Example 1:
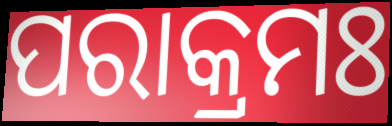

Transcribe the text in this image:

ପରାକ୍ରମଃ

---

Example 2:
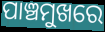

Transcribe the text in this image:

ପାଞ୍ଚମୁଖରେ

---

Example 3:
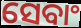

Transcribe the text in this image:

ସେବାଂ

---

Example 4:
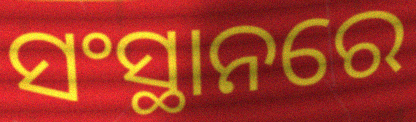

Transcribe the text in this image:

ସଂସ୍ଥାନରେ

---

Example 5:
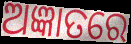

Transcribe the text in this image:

ଅଜ୍ଞାତରେ